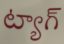
ట్యాగ్